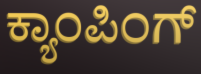
ಕ್ಯಾಂಪಿಂಗ್